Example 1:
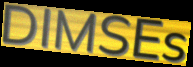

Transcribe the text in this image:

DIMSEs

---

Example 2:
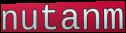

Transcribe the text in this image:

nutanm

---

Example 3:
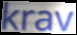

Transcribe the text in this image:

krav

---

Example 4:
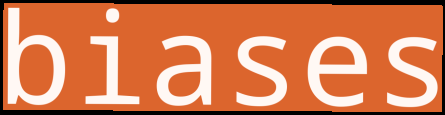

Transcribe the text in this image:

biases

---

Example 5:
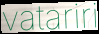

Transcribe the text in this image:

vatariri